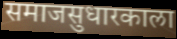
समाजसुधारकाला